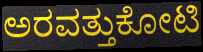
ಅರವತ್ತುಕೋಟಿ